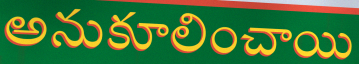
అనుకూలించాయి